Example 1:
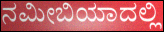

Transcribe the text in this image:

ನಮೀಬಿಯಾದಲ್ಲಿ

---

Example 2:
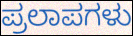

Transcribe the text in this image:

ಪ್ರಲಾಪಗಳು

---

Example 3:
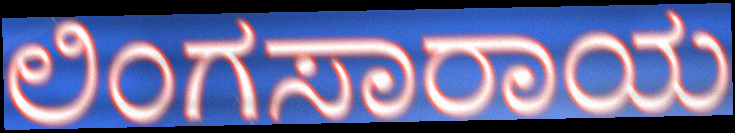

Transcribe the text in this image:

ಲಿಂಗಸಾರಾಯ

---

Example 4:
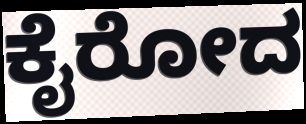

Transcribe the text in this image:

ಕೈರೋದ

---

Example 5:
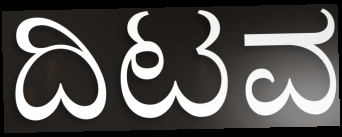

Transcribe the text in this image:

ದಿಟವ